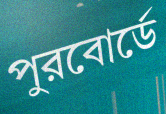
পুরবোর্ডে